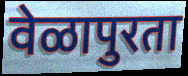
वेळापुरता